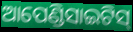
ଆପେଣ୍ଡିସାଇଟିସ୍